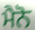
ਮੈਨੋ